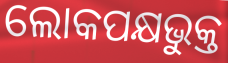
ଲୋକପକ୍ଷଭୁକ୍ତ